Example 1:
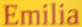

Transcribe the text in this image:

Emilia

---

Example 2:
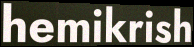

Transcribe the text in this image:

hemikrish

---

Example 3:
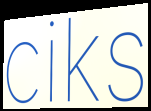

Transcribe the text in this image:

ciks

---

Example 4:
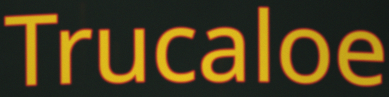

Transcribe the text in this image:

Trucaloe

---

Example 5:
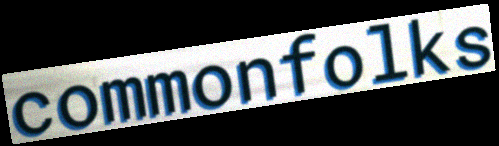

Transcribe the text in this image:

commonfolks